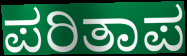
ಪರಿತಾಪ